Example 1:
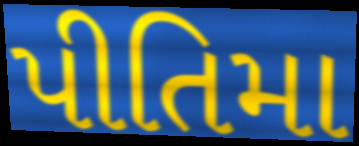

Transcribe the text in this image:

પીતિમા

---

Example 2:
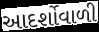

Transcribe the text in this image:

આદર્શોવાળી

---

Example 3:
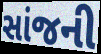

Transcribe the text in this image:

સાંજની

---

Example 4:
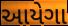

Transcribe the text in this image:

આયેગા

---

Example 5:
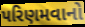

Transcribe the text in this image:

પરિણમવાનો